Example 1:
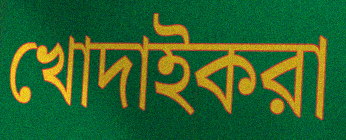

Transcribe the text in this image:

খোদাইকরা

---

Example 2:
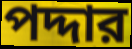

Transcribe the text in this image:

পদ্দার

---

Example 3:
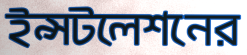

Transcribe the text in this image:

ইন্সটলেশনের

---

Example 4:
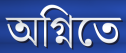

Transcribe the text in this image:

অগ্নিতে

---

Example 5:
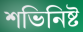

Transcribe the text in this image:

শভিনিষ্ট